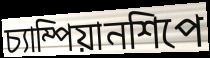
চ্যাম্পিয়ানশিপে